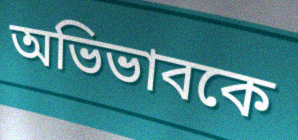
অভিভাবকে